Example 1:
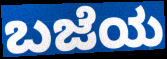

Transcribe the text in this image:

ಬಜೆಯ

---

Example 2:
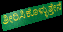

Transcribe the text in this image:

ತೀರಿಸಿಕೊಳ್ಳುತ್ತೇನೆ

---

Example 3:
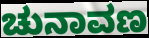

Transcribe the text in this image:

ಚುನಾವಣ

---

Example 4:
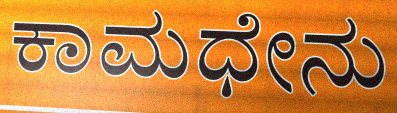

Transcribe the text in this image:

ಕಾಮಧೇನು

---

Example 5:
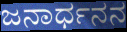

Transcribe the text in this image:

ಜನಾರ್ಧನನ